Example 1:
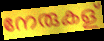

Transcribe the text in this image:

നേരുകള്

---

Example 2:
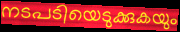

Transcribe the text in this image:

നടപടിയെടുക്കുകയും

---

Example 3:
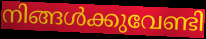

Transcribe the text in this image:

നിങ്ങൾക്കുവേണ്ടി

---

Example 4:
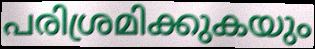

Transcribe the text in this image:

പരിശ്രമിക്കുകയും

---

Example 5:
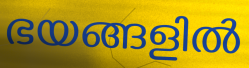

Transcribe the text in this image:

ഭയങ്ങളിൽ